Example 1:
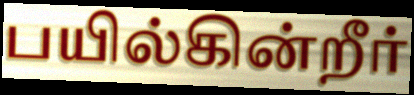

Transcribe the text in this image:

பயில்கின்றீர்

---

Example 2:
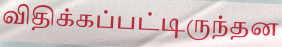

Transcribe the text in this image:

விதிக்கப்பட்டிருந்தன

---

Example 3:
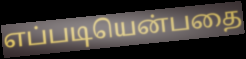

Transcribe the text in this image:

எப்படியென்பதை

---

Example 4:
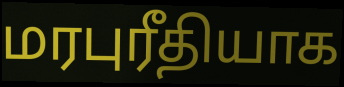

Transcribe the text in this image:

மரபுரீதியாக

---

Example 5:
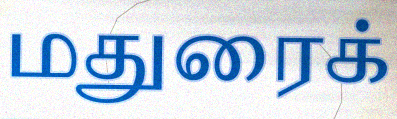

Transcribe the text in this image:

மதுரைக்